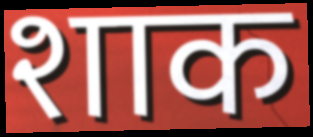
शाक